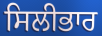
ਸਿਲੀਭਾਰ